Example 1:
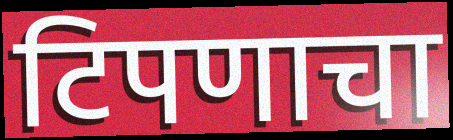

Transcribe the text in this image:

टिपणाचा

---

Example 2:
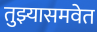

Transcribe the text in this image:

तुझ्यासमवेत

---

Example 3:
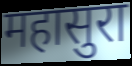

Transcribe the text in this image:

महासुरा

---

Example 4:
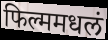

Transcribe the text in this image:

फिल्ममधलं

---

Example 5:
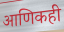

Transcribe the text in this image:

आणिकही